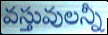
వస్తువులన్నీ